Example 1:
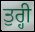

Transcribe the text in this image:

ਤੁਰ੍ਹੀ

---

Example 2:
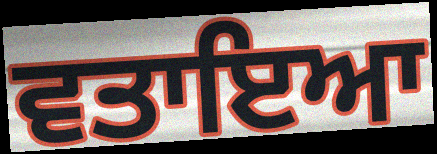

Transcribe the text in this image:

ਵਤਾਇਆ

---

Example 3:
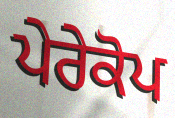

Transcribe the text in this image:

ਪੇਰੇਕੋਪ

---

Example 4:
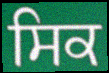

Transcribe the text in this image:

ਸਿਕ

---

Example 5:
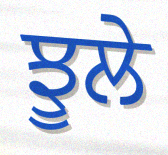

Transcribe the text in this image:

ਝੂਲੇ